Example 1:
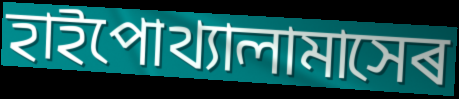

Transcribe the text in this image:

হাইপোথ্যালামাসেৰ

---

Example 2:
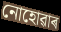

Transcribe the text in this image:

নোহোৱাৰ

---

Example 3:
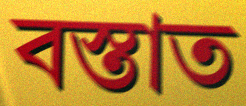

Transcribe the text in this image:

বস্তাত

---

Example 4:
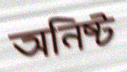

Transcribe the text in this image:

অনিষ্ট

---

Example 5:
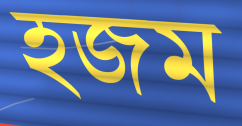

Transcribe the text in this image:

হজম